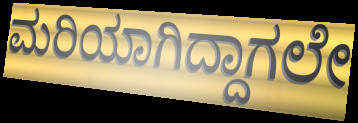
ಮರಿಯಾಗಿದ್ದಾಗಲೇ